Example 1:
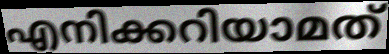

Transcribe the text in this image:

എനിക്കറിയാമത്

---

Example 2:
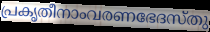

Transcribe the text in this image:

പ്രകൃതീനാംവരണഭേദസ്തു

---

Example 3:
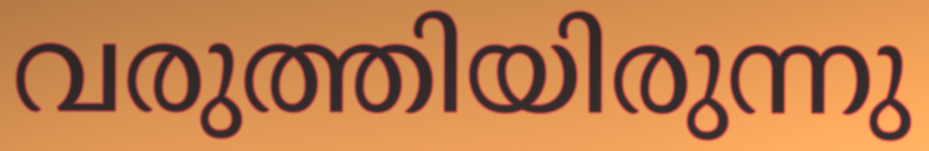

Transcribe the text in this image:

വരുത്തിയിരുന്നു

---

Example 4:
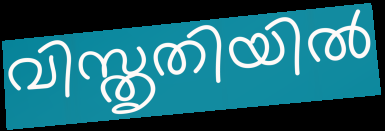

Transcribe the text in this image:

വിസ്തൃതിയിൽ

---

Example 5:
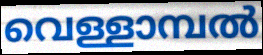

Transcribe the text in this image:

വെള്ളാമ്പൽ